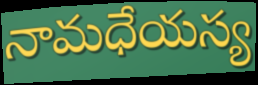
నామధేయస్య